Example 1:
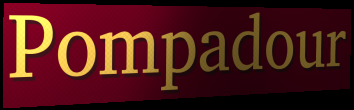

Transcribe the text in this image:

Pompadour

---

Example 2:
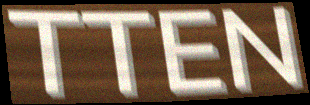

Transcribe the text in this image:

TTEN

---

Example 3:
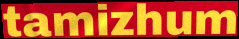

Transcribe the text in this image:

tamizhum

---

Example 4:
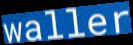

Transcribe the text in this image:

waller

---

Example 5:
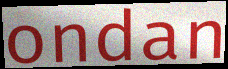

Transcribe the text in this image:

ondan